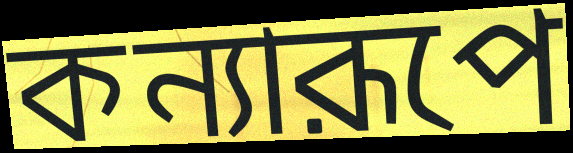
কন্যারূপে